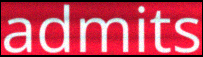
admits